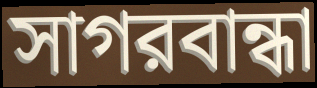
সাগরবান্ধা